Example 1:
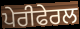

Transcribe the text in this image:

ਪੇਰੀਫੇਰਲ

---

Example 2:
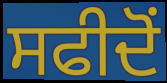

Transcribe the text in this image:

ਸਫੀਦੋਂ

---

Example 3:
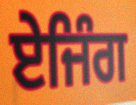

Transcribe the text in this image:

ਏਜਿੰਗ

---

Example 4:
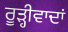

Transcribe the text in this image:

ਰੂੜ੍ਹੀਵਾਦਾਂ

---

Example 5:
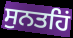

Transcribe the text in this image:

ਸੁਨਤਹਿਂ